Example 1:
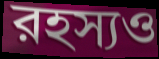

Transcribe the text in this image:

রহস্যও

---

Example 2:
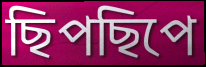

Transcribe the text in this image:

ছিপছিপে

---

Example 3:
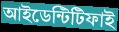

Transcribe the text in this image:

আইডেন্টিটিফাই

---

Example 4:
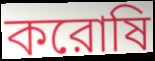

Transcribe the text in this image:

করোষি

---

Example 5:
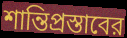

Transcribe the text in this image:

শান্তিপ্রস্তাবের